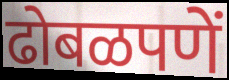
ढोबळपणें